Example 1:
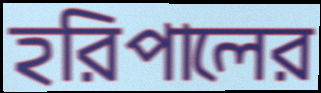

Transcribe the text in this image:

হরিপালের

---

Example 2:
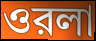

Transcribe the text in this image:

ওরলা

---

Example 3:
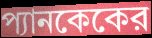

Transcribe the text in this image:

প্যানকেকের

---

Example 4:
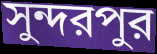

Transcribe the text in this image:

সুন্দরপুর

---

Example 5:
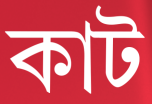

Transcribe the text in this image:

কাট